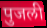
पुजली